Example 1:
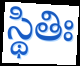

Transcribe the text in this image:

స్థితిః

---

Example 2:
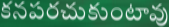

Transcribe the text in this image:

కనపరచుకుంటావు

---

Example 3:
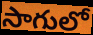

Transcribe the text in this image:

సాగులో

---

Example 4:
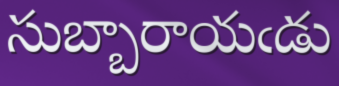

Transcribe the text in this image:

సుబ్బారాయఁడు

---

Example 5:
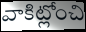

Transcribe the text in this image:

వాకిట్లోంచి